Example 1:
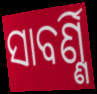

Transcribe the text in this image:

ସାବର୍ଣ୍ଣି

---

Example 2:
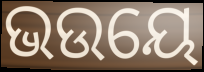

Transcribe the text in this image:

ଭଉୟେ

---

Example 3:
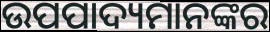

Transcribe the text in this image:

ଉପପାଦ୍ୟମାନଙ୍କର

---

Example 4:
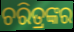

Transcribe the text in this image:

ଚରିତ୍ରଙ୍କର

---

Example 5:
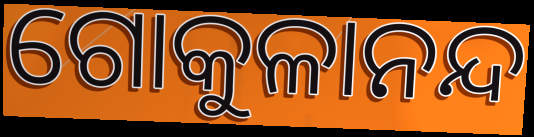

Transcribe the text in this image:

ଗୋକୁଳାନନ୍ଦ